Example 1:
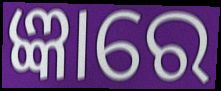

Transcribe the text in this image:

ଜ୍ଞାରେ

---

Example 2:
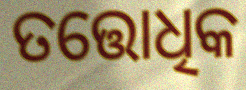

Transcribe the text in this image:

ତତ୍ତୋଧିକ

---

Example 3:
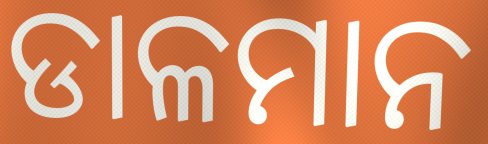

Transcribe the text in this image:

ଡାଳମାନ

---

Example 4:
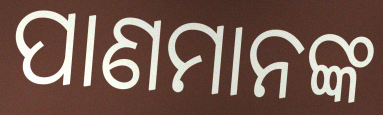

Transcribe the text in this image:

ପାଣମାନଙ୍କ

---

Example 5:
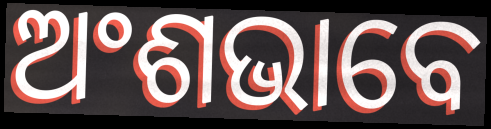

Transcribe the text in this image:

ଅଂଶଭାବେ